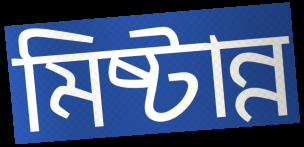
মিষ্টান্ন